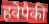
हवेपैकी